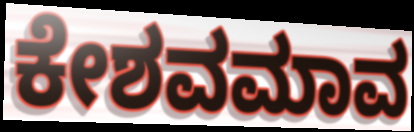
ಕೇಶವಮಾವ